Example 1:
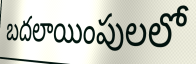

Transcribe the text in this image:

బదలాయింపులలో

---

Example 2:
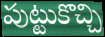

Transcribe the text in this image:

పుట్టుకొచ్చి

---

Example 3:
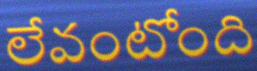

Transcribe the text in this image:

లేవంటోంది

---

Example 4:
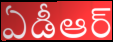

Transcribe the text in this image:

ఏడీఆర్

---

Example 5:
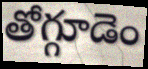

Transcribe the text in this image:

తోగ్గూడెం